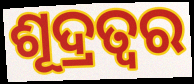
ଶୂଦ୍ରତ୍ଵର